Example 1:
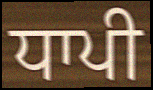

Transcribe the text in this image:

ਧਾਪੀ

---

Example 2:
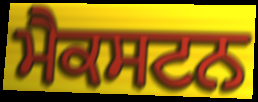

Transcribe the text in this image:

ਮੈਕਸਟਨ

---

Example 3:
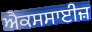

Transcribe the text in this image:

ਐਕਸਸਾਈਜ਼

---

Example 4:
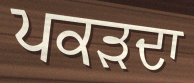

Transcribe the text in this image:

ਪਕੜਦਾ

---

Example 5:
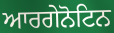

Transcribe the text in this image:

ਆਰਗੇਨੋਟਿਨ